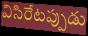
విసిరేటప్పుడు